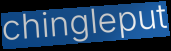
chingleput